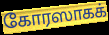
கோரஸாகக்